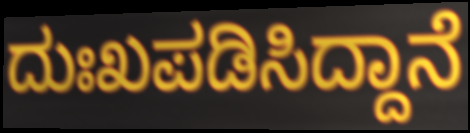
ದುಃಖಪಡಿಸಿದ್ದಾನೆ